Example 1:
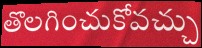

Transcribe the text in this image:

తొలగించుకోవచ్చు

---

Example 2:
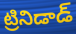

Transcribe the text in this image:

ట్రినిడాడ్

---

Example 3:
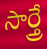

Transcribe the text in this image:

సార్త్రే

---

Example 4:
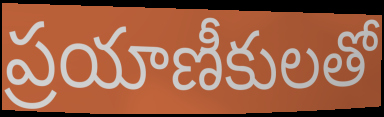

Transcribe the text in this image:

ప్రయాణీకులతో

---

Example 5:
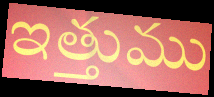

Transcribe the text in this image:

ఇత్తుము